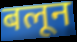
बलून